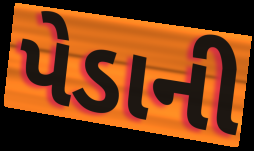
પેડાની